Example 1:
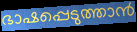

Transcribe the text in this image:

ഭാഷപ്പെടുത്താൻ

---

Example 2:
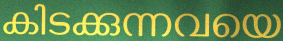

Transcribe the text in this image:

കിടക്കുന്നവയെ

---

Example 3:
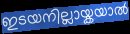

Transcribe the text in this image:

ഇടയനില്ലായ്കയാൽ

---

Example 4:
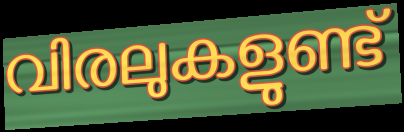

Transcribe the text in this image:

വിരലുകളുണ്ട്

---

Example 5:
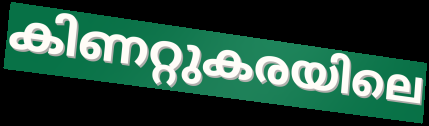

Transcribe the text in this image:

കിണറ്റുകരയിലെ